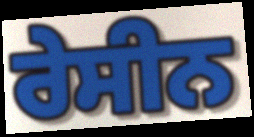
ਰੇਸੀਨ